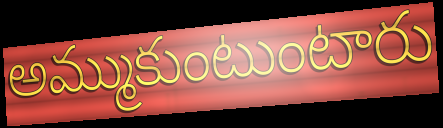
అమ్ముకుంటుంటారు